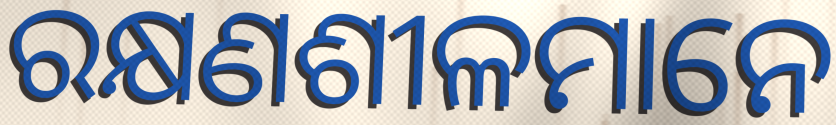
ରକ୍ଷଣଶୀଳମାନେ